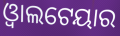
ଓ୍ୱାଲଟେୟାର